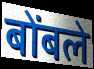
बोंबले